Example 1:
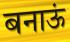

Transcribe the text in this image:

बनाऊं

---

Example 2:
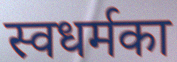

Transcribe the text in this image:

स्वधर्मका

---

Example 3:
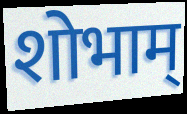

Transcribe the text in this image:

शोभाम्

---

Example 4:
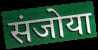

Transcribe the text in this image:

संजोया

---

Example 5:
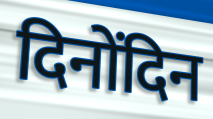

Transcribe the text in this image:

दिनोंदिन